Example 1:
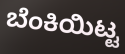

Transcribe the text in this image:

ಬೆಂಕಿಯಿಟ್ಟ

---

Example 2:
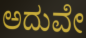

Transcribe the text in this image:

ಅದುವೇ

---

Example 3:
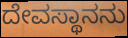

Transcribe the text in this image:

ದೇವಸ್ಥಾನನು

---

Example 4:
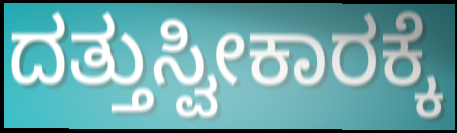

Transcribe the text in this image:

ದತ್ತುಸ್ವೀಕಾರಕ್ಕೆ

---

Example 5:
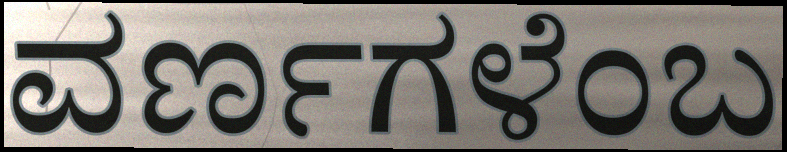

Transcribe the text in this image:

ವರ್ಣಗಳೆಂಬ